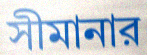
সীমানার